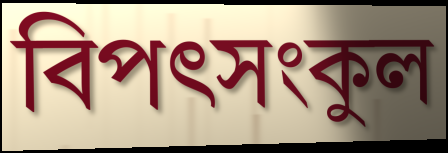
বিপৎসংকুল